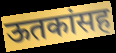
ऊतकांसह